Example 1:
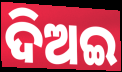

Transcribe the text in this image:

ଦିଅଇ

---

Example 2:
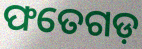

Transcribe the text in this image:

ଫତେଗଡ଼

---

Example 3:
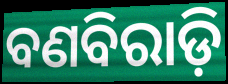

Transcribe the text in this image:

ବଣବିରାଡ଼ି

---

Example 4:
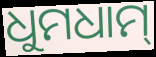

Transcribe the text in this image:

ଧୁମଧାମ୍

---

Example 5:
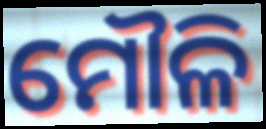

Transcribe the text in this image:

ମୌଳି